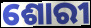
ଶୋରୀ